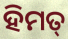
ହିମତ୍